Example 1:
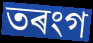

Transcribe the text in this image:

তৰংগ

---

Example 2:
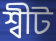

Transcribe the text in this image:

শ্বীট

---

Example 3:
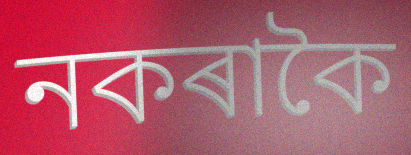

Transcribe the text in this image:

নকৰাকৈ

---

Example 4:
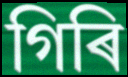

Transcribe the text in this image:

গিৰি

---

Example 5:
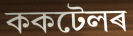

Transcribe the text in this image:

ককটেলৰ